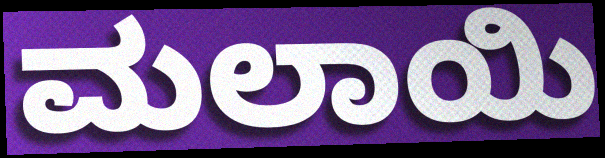
ಮಲಾಯಿ